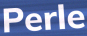
Perle